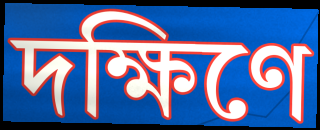
দক্ষিণে